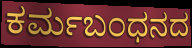
ಕರ್ಮಬಂಧನದ